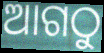
ଆଗଠୁ